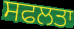
ਸਫਲਤਾ